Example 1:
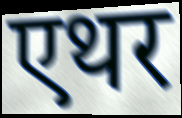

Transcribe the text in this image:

एथर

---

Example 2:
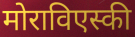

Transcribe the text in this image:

मोराविएस्की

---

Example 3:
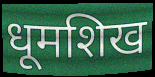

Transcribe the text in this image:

धूमशिख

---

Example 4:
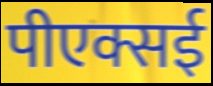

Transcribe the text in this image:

पीएक्सई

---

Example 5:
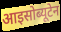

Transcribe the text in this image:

आइसोब्यूटेन